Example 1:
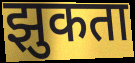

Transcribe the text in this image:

झुकता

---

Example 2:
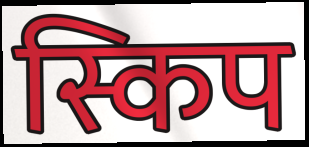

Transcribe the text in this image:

स्किप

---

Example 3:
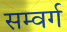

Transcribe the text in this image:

सम्वर्ग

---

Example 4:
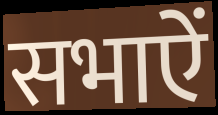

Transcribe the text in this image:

सभाऐं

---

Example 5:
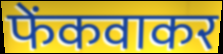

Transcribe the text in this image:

फेंकवाकर